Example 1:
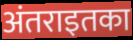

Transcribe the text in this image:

अंतराइतका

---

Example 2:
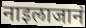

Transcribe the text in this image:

नाइलाजानं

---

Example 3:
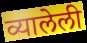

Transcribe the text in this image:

व्यालेली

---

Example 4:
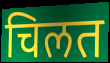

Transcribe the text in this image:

चिलत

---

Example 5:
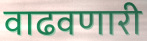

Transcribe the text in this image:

वाढवणारी